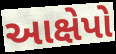
આક્ષેપો